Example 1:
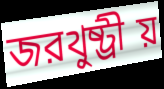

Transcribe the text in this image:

জরথুষ্ট্রীয়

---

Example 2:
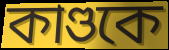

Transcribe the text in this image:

কাণ্ডকে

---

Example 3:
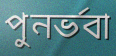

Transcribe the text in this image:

পুনর্ভবা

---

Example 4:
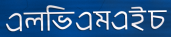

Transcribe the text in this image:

এলভিএমএইচ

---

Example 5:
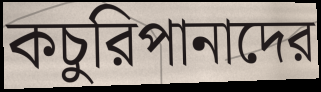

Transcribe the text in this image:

কচুরিপানাদের